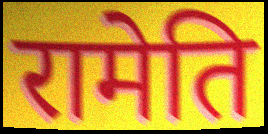
रामेति